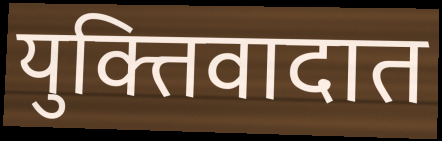
युक्तिवादात